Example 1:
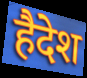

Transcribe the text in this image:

हैदेश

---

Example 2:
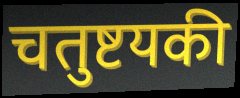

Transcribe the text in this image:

चतुष्टयकी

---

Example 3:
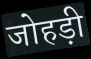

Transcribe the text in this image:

जोहड़ी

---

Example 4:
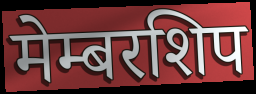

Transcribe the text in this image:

मेम्बरशिप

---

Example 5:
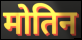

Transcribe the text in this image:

मोतिन